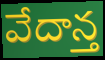
వేదాన్త